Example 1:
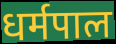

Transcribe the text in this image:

धर्मपाल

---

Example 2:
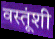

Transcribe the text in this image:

वस्तूंशी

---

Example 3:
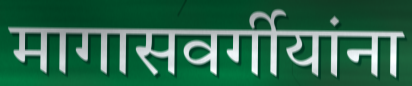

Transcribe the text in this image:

मागासवर्गीयांना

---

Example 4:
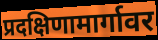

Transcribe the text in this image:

प्रदक्षिणामार्गावर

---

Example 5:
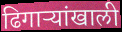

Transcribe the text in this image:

ढिगाऱ्यांखाली